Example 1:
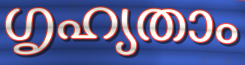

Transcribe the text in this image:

ഗൃഹ്യതാം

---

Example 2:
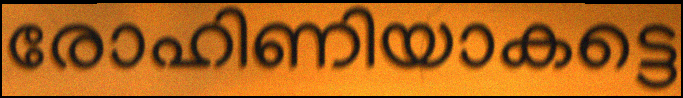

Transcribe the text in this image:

രോഹിണിയാകട്ടെ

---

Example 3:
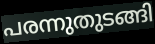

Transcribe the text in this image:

പരന്നുതുടങ്ങി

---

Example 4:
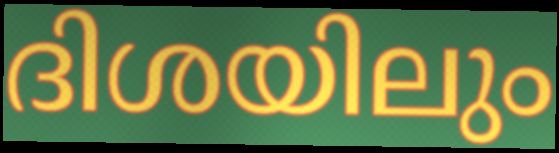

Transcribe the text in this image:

ദിശയിലും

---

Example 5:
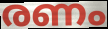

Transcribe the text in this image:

രണം